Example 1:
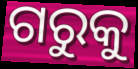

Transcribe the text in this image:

ଗରୁକୁ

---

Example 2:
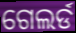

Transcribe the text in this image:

ଗେଲର୍ଡ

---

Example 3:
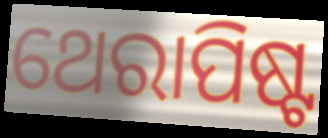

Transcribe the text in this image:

ଥେରାପିଷ୍ଟ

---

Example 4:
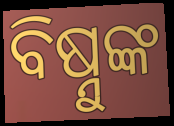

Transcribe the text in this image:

ବିଷ୍ନୁଙ୍କ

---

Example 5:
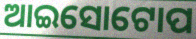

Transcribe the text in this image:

ଆଇସୋଟୋପ